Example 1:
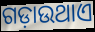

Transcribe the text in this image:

ଗଡ଼ାଉଥାଏ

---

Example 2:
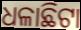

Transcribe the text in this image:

ଧଳାଛିଟା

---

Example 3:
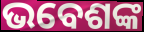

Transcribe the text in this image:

ଭବେଶଙ୍କ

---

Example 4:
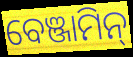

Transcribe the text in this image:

ବେଞ୍ଜାମିନ୍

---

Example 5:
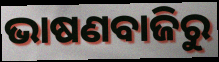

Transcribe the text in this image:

ଭାଷଣବାଜିରୁ